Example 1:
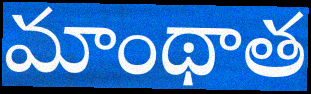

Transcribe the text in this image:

మాంథాత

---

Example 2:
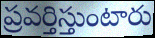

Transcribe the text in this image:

ప్రవర్తిస్తుంటారు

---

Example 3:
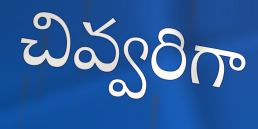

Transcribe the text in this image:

చివ్వరిగా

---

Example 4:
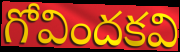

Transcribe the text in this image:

గోవిందకవి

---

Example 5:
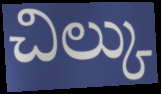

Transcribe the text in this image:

చిల్కు